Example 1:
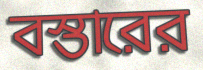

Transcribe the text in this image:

বস্তারের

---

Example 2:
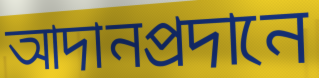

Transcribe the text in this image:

আদানপ্রদানে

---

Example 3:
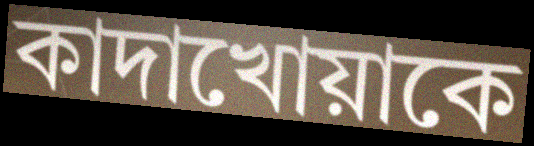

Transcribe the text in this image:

কাদাখোয়াকে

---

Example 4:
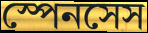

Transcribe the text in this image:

স্পেনসেস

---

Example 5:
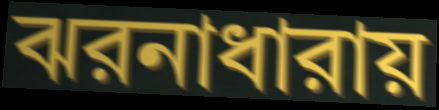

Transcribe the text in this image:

ঝরনাধারায়